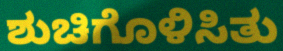
ಶುಚಿಗೊಳಿಸಿತು